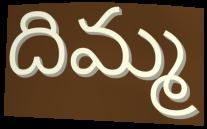
దిమ్మ